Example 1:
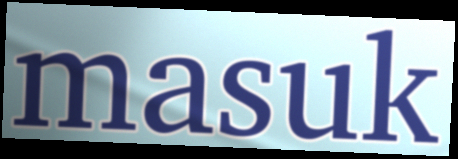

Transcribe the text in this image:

masuk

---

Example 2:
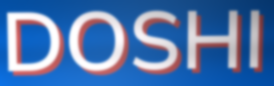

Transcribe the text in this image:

DOSHI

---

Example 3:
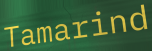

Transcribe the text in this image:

Tamarind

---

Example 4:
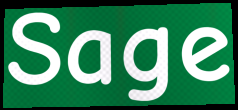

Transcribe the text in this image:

Sage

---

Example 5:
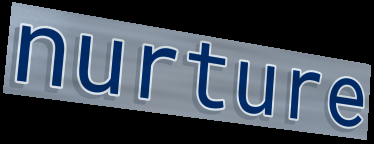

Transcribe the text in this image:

nurture